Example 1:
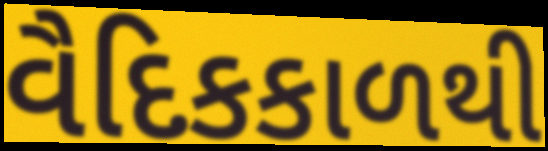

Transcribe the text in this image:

વૈદિકકાળથી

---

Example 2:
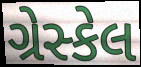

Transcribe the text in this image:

ગ્રેસ્કેલ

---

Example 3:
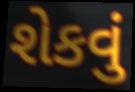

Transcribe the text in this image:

શેકવું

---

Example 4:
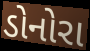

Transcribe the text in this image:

ડોનોરા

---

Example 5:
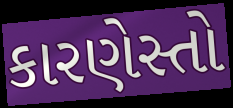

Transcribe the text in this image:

કારણેસ્તો